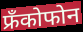
फ्रँकोफोन